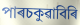
পাৰচকুৱাবিৰি